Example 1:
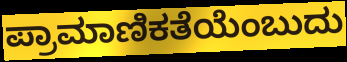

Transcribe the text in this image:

ಪ್ರಾಮಾಣಿಕತೆಯೆಂಬುದು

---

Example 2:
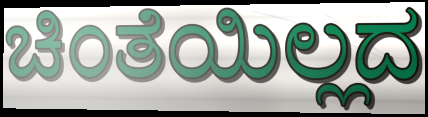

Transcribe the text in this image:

ಚಿಂತೆಯಿಲ್ಲದ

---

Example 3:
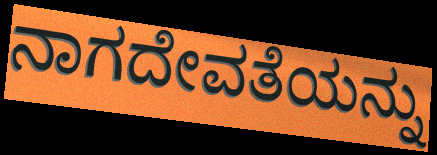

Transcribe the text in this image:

ನಾಗದೇವತೆಯನ್ನು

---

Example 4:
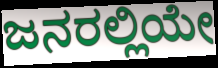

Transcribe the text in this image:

ಜನರಲ್ಲಿಯೇ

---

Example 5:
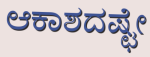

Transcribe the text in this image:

ಆಕಾಶದಷ್ಟೇ